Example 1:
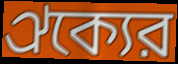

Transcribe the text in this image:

ঐক্যের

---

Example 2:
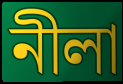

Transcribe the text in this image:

নীলা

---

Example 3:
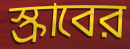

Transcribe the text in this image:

স্ক্রাবের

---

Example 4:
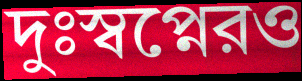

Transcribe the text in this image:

দুঃস্বপ্নেরও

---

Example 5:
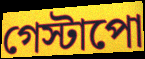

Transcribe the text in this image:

গেস্টাপো